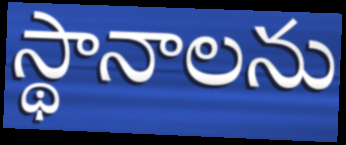
స్థానాలను